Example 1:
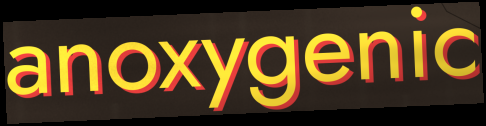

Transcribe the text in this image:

anoxygenic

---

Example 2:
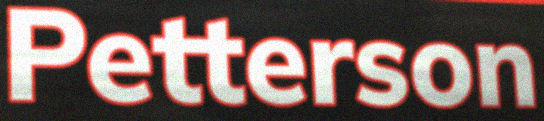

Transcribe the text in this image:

Petterson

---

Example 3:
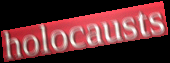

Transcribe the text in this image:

holocausts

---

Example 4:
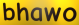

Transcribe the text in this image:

bhawo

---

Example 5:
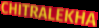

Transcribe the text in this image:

CHITRALEKHA